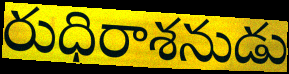
రుధిరాశనుడు